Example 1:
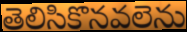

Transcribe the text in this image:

తెలిసికొనవలెను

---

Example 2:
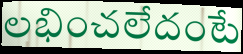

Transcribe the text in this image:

లభించలేదంటే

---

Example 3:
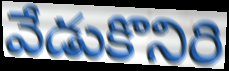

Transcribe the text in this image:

వేడుకొనిరి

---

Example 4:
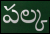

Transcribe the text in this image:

పల్క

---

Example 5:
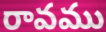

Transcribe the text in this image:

రావము